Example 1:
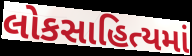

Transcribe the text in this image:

લોકસાહિત્યમાં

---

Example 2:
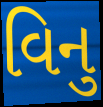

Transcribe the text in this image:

વિનુ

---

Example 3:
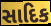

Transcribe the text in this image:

સાદિક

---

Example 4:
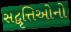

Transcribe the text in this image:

સદ્વૃત્તિઓનો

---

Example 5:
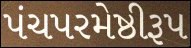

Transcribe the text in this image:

પંચપરમેષ્ઠીરૂપ